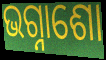
ଭଗ୍ନାଶୋ